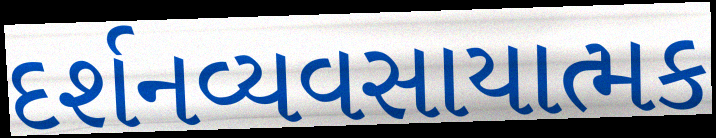
દર્શનવ્યવસાયાત્મક